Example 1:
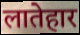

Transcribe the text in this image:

लातेहार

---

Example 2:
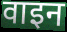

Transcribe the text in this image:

वाइन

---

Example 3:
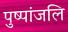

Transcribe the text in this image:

पुष्‍पांजलि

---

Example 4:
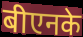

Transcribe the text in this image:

बीएनके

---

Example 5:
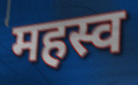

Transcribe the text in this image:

महस्व